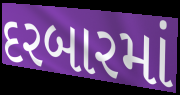
દરબારમાં